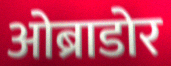
ओब्राडोर